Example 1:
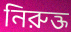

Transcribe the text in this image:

নিরুক্ত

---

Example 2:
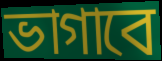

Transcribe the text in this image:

ভাগাবে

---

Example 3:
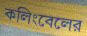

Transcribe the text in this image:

কলিংবেলের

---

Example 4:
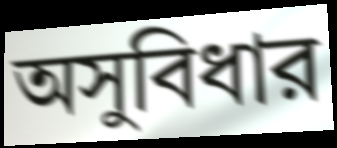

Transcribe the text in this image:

অসুবিধার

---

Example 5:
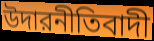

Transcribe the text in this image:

উদারনীতিবাদী